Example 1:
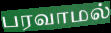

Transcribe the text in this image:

பரவாமல்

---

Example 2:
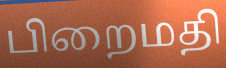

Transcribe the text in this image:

பிறைமதி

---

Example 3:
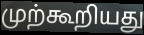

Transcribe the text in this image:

முற்கூறியது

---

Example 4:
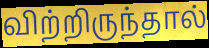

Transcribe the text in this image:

விற்றிருந்தால்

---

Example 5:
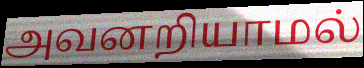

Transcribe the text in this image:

அவனறியாமல்